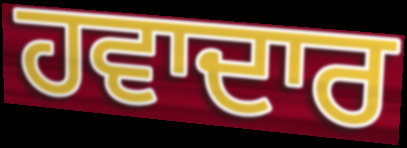
ਹਵਾਦਾਰ